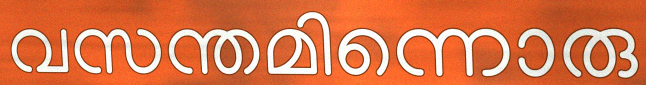
വസന്തമിന്നൊരു